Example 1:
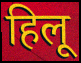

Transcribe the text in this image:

हिलू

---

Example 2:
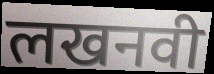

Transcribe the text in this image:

लखनवी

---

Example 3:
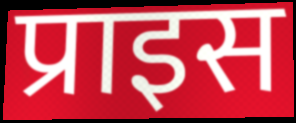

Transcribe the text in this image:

प्राइस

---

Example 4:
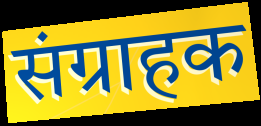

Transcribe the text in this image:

संग्राहक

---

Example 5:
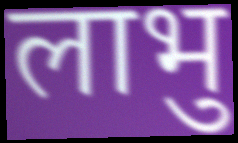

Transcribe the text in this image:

लाभु